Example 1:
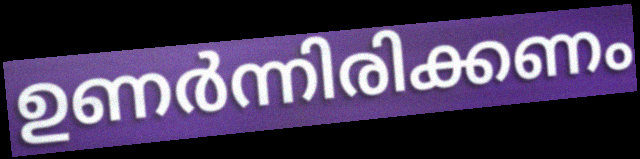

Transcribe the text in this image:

ഉണർന്നിരിക്കണം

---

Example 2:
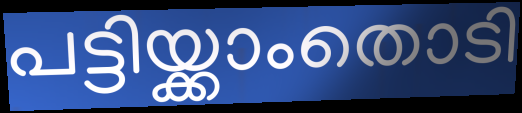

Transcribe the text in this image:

പട്ടിയ്ക്കാംതൊടി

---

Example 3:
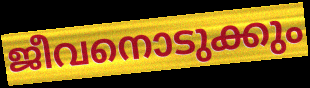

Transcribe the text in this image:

ജീവനൊടുക്കും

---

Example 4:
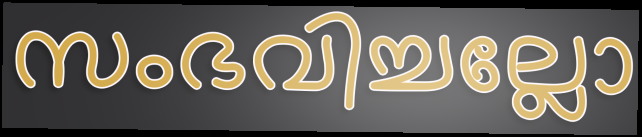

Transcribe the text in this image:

സംഭവിച്ചല്ലോ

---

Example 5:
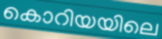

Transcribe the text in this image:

കൊറിയയിലെ